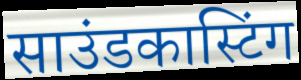
साउंडकास्टिंग